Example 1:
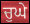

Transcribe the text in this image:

ਚੁਘੇ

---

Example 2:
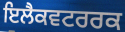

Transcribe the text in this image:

ਇਲੈਕਵਟਰਰਕ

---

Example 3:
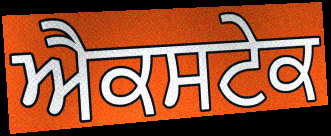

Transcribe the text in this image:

ਐਕਸਟੇਕ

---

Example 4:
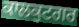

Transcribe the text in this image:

ਕਾਲਕੁਟਗਰ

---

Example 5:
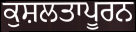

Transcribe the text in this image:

ਕੁਸ਼ਲਤਾਪੂਰਨ